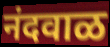
नंदवाळ